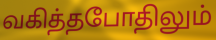
வகித்தபோதிலும்